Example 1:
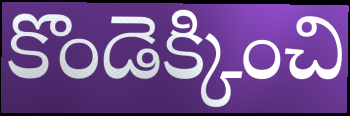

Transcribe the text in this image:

కొండెక్కించి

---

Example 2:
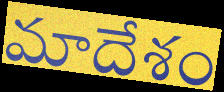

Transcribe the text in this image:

మాదేశం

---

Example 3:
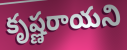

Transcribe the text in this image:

కృష్ణరాయని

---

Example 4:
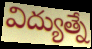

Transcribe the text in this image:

విద్యుత్నే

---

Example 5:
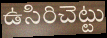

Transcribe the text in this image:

ఉసిరిచెట్టు